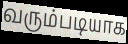
வரும்படியாக